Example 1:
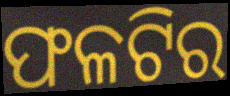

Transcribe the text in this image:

ଫଳଟିର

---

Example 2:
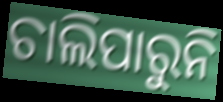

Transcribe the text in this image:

ଚାଲିପାରୁନି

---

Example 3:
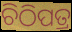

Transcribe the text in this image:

ଚିଠିପତ୍ର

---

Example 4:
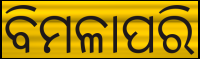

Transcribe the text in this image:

ବିମଳାପରି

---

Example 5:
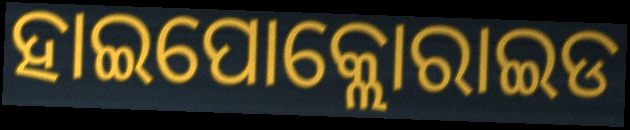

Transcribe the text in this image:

ହାଇପୋକ୍ଲୋରାଇଡ